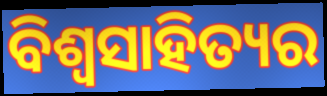
ବିଶ୍ୱସାହିତ୍ୟର